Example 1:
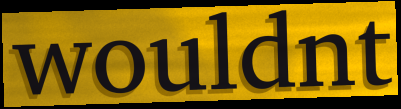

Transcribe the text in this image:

wouldnt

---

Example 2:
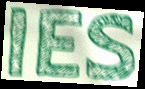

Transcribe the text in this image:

IES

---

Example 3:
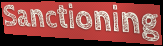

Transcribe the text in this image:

Sanctioning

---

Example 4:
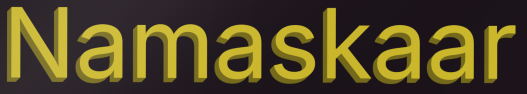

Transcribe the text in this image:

Namaskaar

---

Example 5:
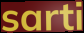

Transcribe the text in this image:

sarti